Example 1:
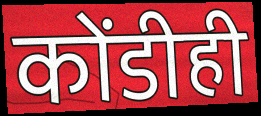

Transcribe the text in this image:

कोंडीही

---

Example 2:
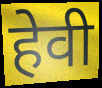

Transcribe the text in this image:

हेवी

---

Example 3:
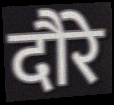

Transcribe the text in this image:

दौरे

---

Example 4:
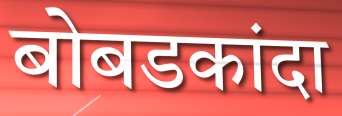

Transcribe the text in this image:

बोबडकांदा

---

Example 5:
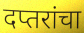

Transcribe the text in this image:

दप्तरांचा